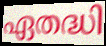
ഏതദ്ധി